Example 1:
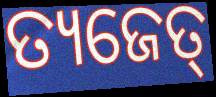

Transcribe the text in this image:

ତ୍ଯଜେତ୍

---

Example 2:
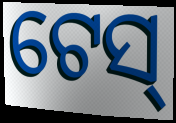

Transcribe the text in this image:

ଟେସ୍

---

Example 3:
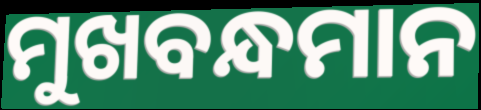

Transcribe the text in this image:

ମୁଖବନ୍ଧମାନ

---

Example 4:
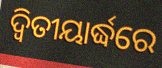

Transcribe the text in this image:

ଦ୍ଵିତୀୟାର୍ଦ୍ଧରେ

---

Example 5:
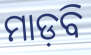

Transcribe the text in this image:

ମାଡ଼ବି